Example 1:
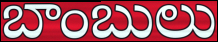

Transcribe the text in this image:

బాంబులు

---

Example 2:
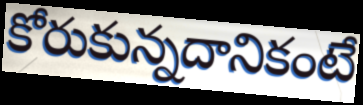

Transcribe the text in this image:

కోరుకున్నదానికంటే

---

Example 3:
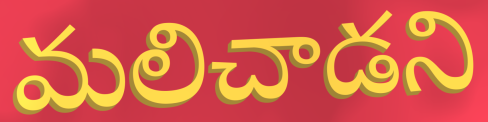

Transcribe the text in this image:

మలిచాడని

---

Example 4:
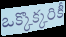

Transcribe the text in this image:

ఒక్కొక్కరికీ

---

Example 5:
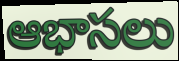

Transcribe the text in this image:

ఆభాసలు